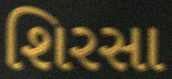
શિરસા